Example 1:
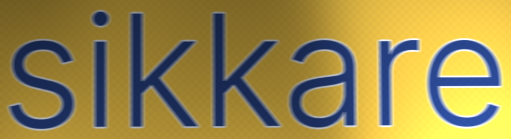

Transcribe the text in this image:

sikkare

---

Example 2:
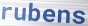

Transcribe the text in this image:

rubens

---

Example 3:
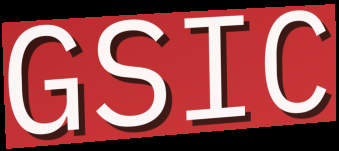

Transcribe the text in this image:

GSIC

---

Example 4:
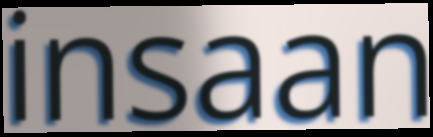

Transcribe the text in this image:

insaan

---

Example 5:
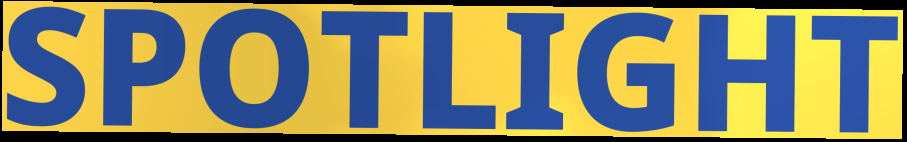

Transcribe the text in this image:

SPOTLIGHT